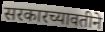
सरकारच्यावतीने